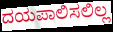
ದಯಪಾಲಿಸಲಿಲ್ಲ